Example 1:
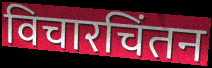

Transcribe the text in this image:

विचारचिंतन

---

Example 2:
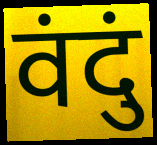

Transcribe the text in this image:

वंदुं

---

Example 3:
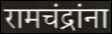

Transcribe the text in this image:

रामचंद्रांना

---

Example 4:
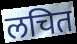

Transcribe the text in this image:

लचित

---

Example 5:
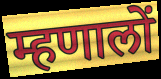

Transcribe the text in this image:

म्हणालों